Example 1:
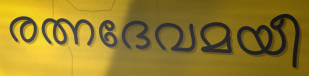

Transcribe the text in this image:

രത്നദേവമയീ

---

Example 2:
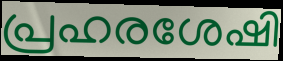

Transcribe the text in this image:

പ്രഹരശേഷി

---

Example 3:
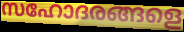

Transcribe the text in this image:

സഹോദരങ്ങളെ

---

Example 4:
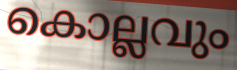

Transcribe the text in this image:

കൊല്ലവും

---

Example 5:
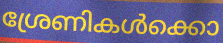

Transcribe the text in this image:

ശ്രേണികൾക്കൊ